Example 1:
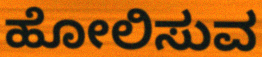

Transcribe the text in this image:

ಹೋಲಿಸುವ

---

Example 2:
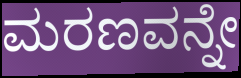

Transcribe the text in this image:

ಮರಣವನ್ನೇ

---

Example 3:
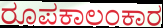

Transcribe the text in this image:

ರೂಪಕಾಲಂಕಾರ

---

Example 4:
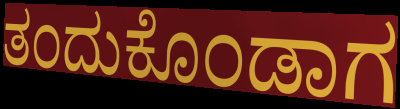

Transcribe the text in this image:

ತಂದುಕೊಂಡಾಗ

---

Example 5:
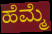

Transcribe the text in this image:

ಹೆಮ್ಮೆ